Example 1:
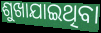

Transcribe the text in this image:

ଶୁଖାଯାଇଥିବା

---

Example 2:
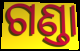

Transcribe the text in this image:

ଗଣ୍ଡା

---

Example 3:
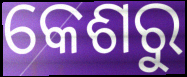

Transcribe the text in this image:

କେଶରୁ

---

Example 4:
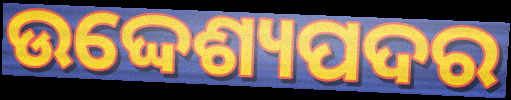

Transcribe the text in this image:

ଉଦ୍ଦେଶ୍ୟପଦର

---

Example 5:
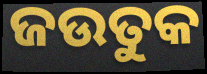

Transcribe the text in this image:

ଜଉତୁକ